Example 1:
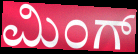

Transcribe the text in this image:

ಮಿಂಗ್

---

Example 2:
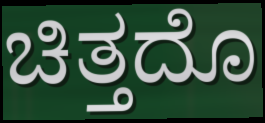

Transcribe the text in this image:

ಚಿತ್ತದೊ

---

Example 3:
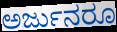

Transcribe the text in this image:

ಅರ್ಜುನರೂ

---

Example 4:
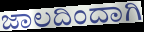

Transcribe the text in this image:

ಜಾಲದಿಂದಾಗಿ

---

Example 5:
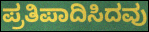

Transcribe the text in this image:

ಪ್ರತಿಪಾದಿಸಿದವು